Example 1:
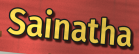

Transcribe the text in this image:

Sainatha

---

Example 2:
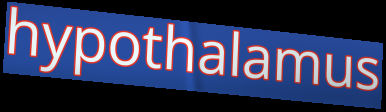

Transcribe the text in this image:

hypothalamus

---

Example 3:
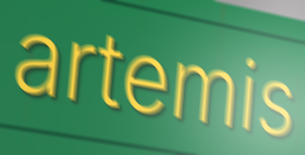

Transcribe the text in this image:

artemis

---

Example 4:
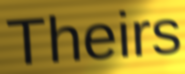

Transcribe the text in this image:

Theirs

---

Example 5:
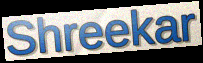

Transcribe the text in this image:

Shreekar